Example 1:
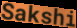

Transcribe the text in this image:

Sakshi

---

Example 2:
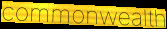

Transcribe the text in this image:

commonwealth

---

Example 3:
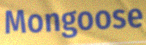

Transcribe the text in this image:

Mongoose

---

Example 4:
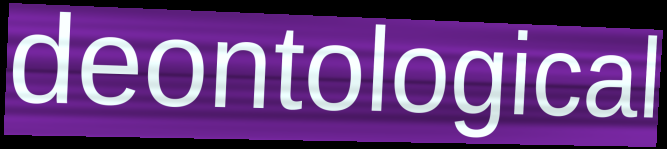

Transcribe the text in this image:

deontological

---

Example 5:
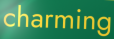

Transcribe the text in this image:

charming